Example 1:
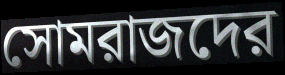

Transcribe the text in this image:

সোমরাজদের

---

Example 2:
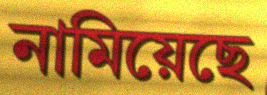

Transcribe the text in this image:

নামিয়েছে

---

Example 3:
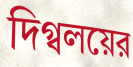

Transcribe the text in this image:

দিগ্বলয়ের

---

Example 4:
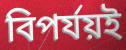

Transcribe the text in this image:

বিপর্যয়ই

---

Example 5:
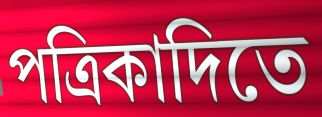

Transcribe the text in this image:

পত্রিকাদিতে